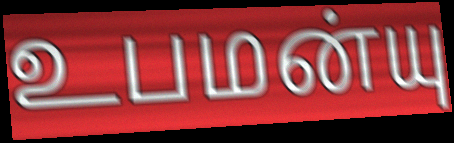
உபமன்யு